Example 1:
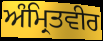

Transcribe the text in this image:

ਅੰਮ੍ਰਿਤਵੀਰ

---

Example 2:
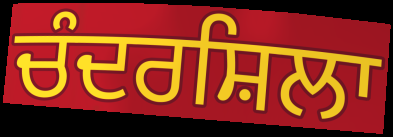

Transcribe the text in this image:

ਚੰਦਰਸ਼ਿਲਾ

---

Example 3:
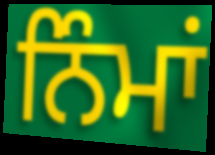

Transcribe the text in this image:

ਨਿੰਮਾਂ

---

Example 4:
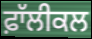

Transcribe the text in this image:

ਫ਼ਾੱਲੀਕਲ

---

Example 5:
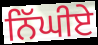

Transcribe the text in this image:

ਨਿੱਘੀਏ